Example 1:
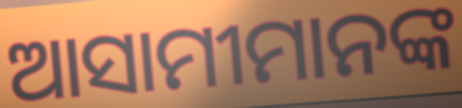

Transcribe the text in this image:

ଆସାମୀମାନଙ୍କ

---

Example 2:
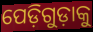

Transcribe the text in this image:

ପେଡ଼ିଗୁଡ଼ାକୁ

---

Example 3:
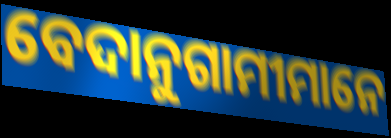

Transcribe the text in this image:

ବେଦାନୁଗାମୀମାନେ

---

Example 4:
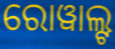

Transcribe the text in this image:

ରୋୱାଲ୍ଟ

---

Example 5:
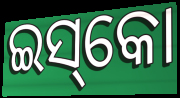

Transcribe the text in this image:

ଇସ୍‌କୋ